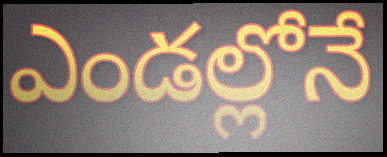
ఎండల్లోనే